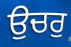
ਉਚਰੁ